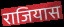
राजियास